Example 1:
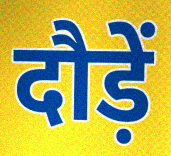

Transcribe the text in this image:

दौड़ें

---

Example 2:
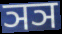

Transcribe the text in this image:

ञञ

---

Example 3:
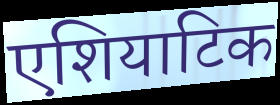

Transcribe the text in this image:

एशियाटिक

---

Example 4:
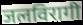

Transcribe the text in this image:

जलविरागी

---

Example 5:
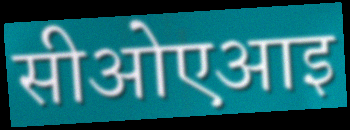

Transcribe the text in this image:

सीओएआइ